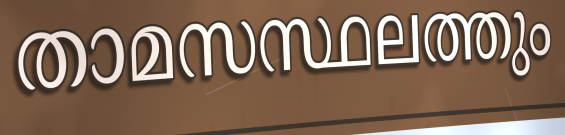
താമസസ്ഥലത്തും